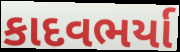
કાદવભર્યા